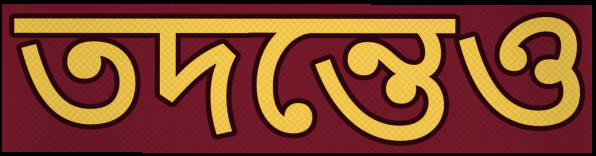
তদন্তেও